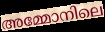
അമ്മോനിലെ